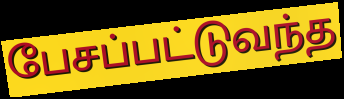
பேசப்பட்டுவந்த